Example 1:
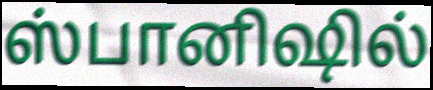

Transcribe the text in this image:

ஸ்பானிஷில்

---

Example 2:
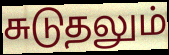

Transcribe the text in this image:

சுடுதலும்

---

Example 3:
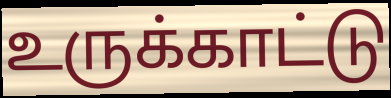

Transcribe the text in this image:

உருக்காட்டு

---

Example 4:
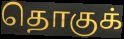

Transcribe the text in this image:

தொகுக்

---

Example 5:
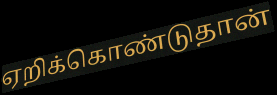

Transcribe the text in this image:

ஏறிக்கொண்டுதான்